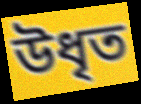
উধৃত